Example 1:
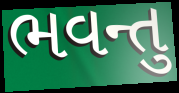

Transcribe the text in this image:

ભવન્તુ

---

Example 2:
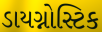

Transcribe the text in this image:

ડાયગ્નોસ્ટિક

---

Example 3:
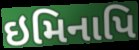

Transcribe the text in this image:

ઇમિનાપિ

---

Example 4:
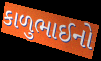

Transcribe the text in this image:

કાળુભાઈનો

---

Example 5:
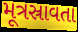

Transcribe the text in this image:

મૂત્રસ્રાવતા